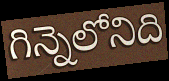
గిన్నెలోనిది